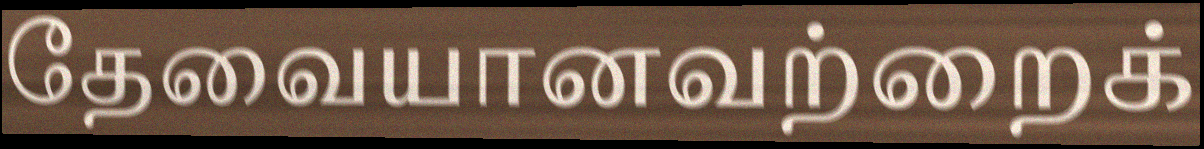
தேவையானவற்றைக்